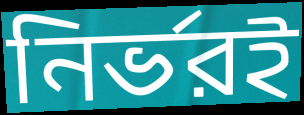
নির্ভরই